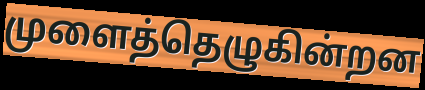
முளைத்தெழுகின்றன